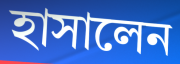
হাসালেন